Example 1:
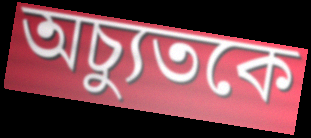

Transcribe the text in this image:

অচ্যুতকে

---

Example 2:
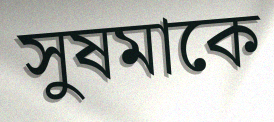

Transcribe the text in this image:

সুষমাকে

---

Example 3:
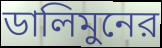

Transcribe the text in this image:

ডালিমুনের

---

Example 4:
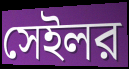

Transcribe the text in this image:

সেইলর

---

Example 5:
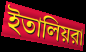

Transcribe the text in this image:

ইতালিয়রা